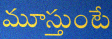
మూస్తుంటే